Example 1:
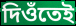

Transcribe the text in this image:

দিওঁতেই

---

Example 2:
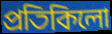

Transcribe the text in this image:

প্ৰতিকিলো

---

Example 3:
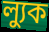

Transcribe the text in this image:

ল্যুক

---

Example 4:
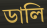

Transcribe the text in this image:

ডালি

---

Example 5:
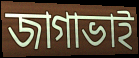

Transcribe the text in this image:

জাগাভাই